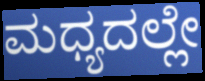
ಮಧ್ಯದಲ್ಲೇ